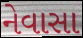
નેવાસા